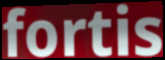
fortis